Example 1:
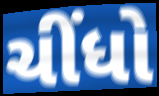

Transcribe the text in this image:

ચીંધો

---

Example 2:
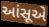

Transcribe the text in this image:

આંસૂએ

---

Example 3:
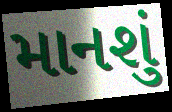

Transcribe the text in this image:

માનશું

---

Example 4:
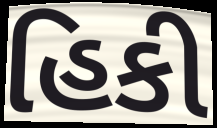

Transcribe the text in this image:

હિકી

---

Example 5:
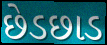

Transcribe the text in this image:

છેડછાડ